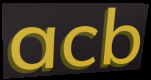
acb